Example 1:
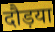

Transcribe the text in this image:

दौड़या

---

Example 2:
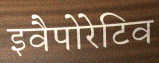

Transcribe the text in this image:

इवैपोरेटिव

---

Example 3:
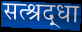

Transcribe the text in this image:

सत्श्रद्धा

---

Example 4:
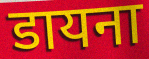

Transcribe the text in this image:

डायना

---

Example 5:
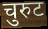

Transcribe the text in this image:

चुरुट